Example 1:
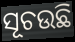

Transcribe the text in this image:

ସୂଚଉଛି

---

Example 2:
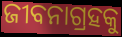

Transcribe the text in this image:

ଜୀବନାଗ୍ରହକୁ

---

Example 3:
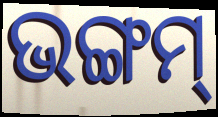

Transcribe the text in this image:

ଭଙ୍ଗମ୍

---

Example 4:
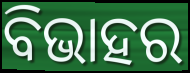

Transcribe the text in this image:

ବିଭାହର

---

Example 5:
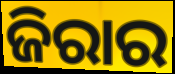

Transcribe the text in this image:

ଜିରାର